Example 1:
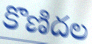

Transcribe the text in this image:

కొణిదల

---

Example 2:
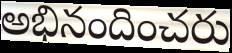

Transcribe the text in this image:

అభినందించరు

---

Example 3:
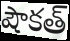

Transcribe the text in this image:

షౌకత్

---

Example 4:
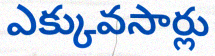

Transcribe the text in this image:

ఎక్కువసార్లు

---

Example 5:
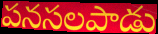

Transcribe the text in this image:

పనసలపాడు